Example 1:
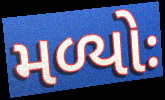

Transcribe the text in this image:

મળ્યોઃ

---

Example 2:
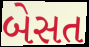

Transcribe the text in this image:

બેસત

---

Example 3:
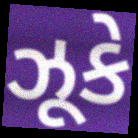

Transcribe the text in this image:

ઝૂકે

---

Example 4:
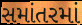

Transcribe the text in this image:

સમાંતરમાં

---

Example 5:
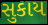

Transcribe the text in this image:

સુકાય